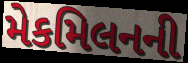
મેકમિલનની